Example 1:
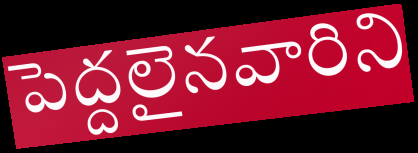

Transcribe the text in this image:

పెద్దలైనవారిని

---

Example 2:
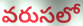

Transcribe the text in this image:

వరుసలో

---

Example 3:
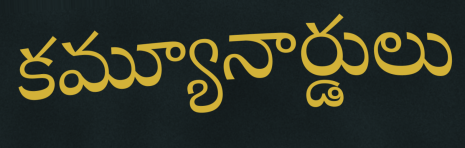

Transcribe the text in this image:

కమ్యూనార్డులు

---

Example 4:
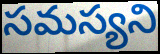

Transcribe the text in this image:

సమస్యని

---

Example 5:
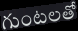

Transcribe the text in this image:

గుంటలతో